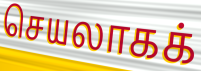
செயலாகக்